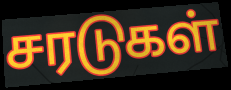
சரடுகள்